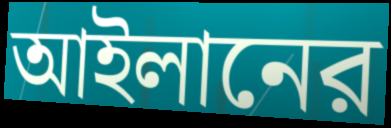
আইলানের